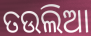
ତଉଲିଆ